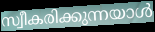
സ്വീകരിക്കുന്നയാൾ